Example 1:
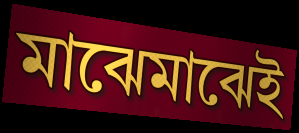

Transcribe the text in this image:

মাঝেমাঝেই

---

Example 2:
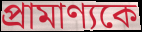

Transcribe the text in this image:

প্রামাণ্যকে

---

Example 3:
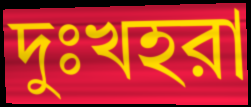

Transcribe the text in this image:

দুঃখহরা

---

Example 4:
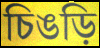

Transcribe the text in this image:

চিঙড়ি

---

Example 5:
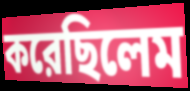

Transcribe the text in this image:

করেছিলেম